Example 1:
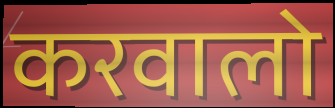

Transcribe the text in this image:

करवालो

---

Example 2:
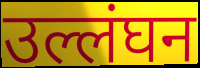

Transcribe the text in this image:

उल्लंघन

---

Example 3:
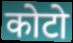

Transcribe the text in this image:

कोटो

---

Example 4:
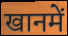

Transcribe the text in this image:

खानमें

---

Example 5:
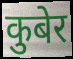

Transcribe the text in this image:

कुबेर